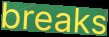
breaks